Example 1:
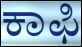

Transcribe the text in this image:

ಕಾಫಿ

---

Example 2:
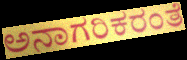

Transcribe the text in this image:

ಅನಾಗರಿಕರಂತೆ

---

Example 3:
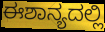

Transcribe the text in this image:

ಈಶಾನ್ಯದಲ್ಲಿ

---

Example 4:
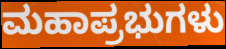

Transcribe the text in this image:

ಮಹಾಪ್ರಭುಗಳು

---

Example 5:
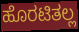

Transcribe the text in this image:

ಹೊರಟಿತಲ್ಲ